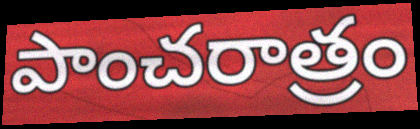
పాంచరాత్రం